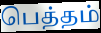
பெத்தம்